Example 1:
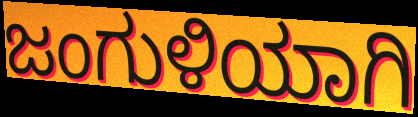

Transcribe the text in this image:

ಜಂಗುಳಿಯಾಗಿ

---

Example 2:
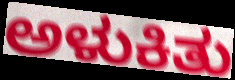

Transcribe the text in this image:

ಅಳುಕಿತು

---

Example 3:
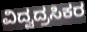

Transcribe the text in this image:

ವಿದ್ವದ್ರಸಿಕರ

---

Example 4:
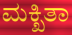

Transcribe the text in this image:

ಮಕ್ಖಿತಾ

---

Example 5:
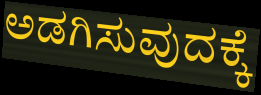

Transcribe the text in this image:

ಅಡಗಿಸುವುದಕ್ಕೆ